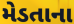
મેડતાના